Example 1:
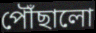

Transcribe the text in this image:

পৌঁছালো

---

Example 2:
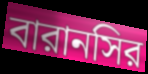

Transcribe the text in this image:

বারানসির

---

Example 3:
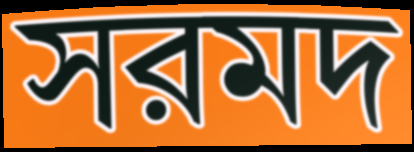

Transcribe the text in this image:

সরমদ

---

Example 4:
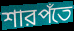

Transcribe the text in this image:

শারপঁতে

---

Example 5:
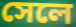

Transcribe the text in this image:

সেলে